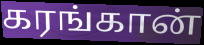
கரங்கான்